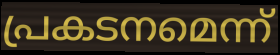
പ്രകടനമെന്ന്